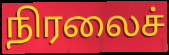
நிரலைச்